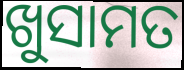
ଖୁସାମତ